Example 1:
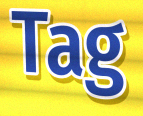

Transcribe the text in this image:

Tag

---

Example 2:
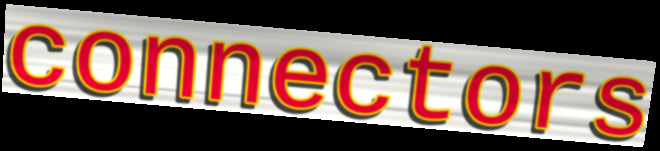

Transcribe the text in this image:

connectors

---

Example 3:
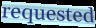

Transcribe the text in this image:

requested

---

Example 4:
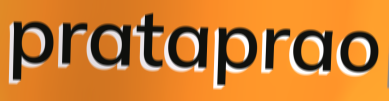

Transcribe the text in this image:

prataprao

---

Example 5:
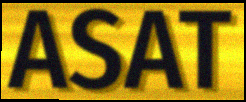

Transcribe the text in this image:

ASAT